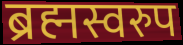
ब्रह्मस्वरुप